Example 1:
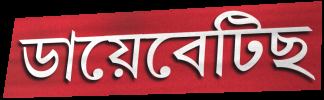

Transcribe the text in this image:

ডায়েবেটিছ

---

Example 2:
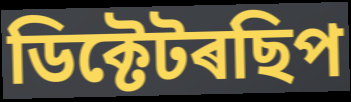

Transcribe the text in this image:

ডিক্টেটৰছিপ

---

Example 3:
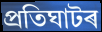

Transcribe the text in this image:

প্ৰতিঘাটৰ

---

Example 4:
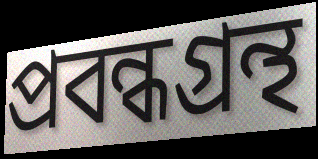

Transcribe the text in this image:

প্ৰবন্ধগ্ৰন্থ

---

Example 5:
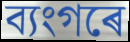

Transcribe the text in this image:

ব্যংগৰে